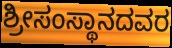
ಶ್ರೀಸಂಸ್ಥಾನದವರ